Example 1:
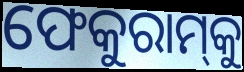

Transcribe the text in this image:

ଫେକୁରାମ୍‌କୁ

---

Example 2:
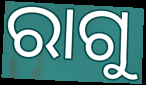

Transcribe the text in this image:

ରାଗୁ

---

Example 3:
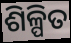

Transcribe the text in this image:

ଶିଳ୍ପିତ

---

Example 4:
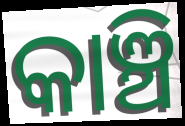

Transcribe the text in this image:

କାଞ୍ଚି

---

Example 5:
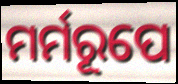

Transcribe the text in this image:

ମର୍ମରୂପେ